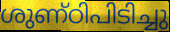
ശുണ്ഠിപിടിച്ചു